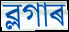
ব্লগাৰ